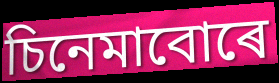
চিনেমাবোৰে